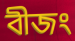
বীজং